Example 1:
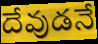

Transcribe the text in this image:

దేవుడనే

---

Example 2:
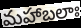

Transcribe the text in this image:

మహాబలాః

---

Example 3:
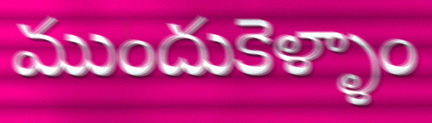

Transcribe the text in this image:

ముందుకెళ్ళాం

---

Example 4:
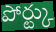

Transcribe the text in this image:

పోర్ట్కు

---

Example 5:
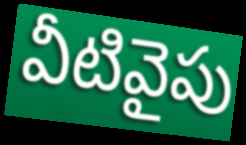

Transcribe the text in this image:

వీటివైపు